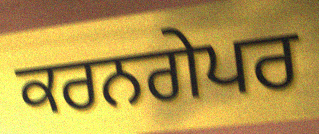
ਕਰਨਗੇਪਰ